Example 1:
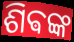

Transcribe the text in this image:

ଶିଵଙ୍କ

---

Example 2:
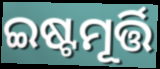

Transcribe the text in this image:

ଇଷ୍ଟମୂର୍ତ୍ତି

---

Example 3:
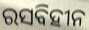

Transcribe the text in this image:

ରସବିହୀନ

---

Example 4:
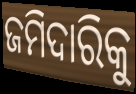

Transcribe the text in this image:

ଜମିଦାରିକୁ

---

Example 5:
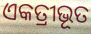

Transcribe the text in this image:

ଏକତ୍ରୀଭୂତ